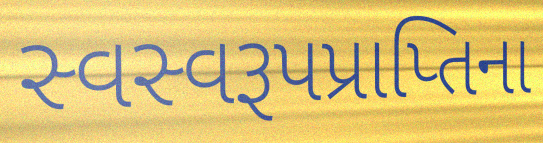
સ્વસ્વરૂપપ્રાપ્તિના